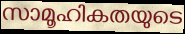
സാമൂഹികതയുടെ